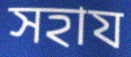
সহায